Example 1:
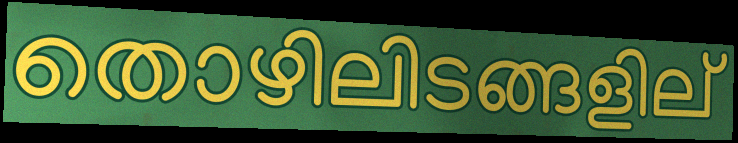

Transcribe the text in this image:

തൊഴിലിടങ്ങളില്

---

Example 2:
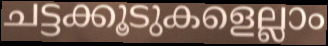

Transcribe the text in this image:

ചട്ടക്കൂടുകളെല്ലാം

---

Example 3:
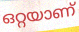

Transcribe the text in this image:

ഒറ്റയാണ്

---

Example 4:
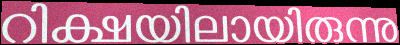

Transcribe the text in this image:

റിക്ഷയിലായിരുന്നു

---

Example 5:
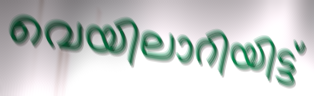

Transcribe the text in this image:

വെയിലാറിയിട്ട്